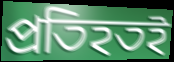
প্রতিহতই